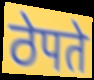
ठेपते